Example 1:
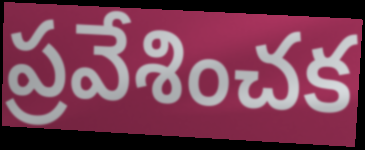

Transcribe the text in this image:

ప్రవేశించక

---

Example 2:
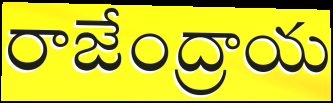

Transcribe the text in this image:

రాజేంద్రాయ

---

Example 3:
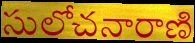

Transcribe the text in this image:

సులోచనారాణి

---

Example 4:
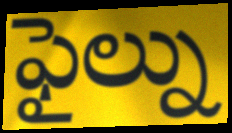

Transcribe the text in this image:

ఫైల్ను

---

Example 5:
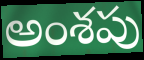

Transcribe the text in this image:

అంశపు